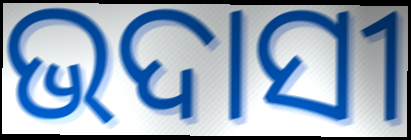
ଭଦାସୀ